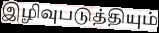
இழிவுபடுத்தியும்